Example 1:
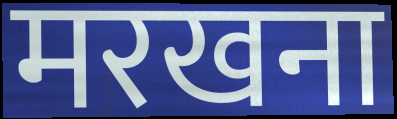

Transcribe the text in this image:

मरखना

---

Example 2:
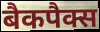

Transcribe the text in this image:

बैकपैक्स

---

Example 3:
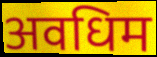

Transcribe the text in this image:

अवधिम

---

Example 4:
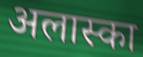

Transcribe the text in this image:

अलास्का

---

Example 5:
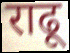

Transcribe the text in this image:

राढू